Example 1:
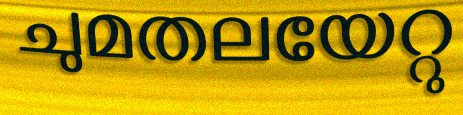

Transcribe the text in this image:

ചുമതലയേറ്റു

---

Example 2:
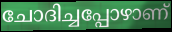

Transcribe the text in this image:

ചോദിച്ചപ്പോഴാണ്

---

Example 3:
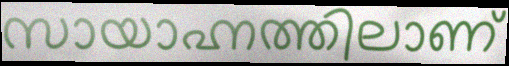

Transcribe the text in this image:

സായാഹ്നത്തിലാണ്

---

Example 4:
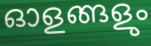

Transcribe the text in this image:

ഓളങ്ങളും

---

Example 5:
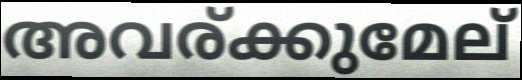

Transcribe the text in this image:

അവര്ക്കുമേല്